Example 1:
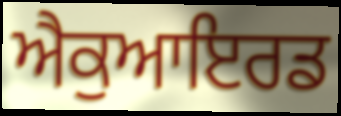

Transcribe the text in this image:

ਐਕੁਆਇਰਡ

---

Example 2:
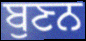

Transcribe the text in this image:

ਬੁਣਨ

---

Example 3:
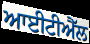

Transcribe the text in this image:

ਆਈਟੀਐੱਲ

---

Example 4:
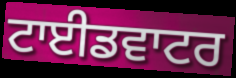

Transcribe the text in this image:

ਟਾਈਡਵਾਟਰ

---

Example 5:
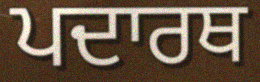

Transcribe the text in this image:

ਪਦਾਰਥ